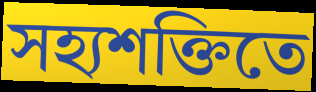
সহ্যশক্তিতে